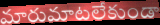
మారుమాటలేకుండా